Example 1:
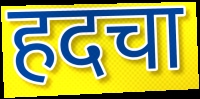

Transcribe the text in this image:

हदचा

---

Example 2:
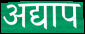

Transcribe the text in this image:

अद्याप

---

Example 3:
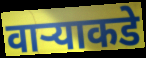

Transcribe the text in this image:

वाऱ्याकडे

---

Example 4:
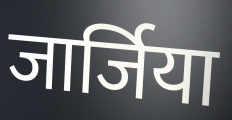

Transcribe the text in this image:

जार्जिया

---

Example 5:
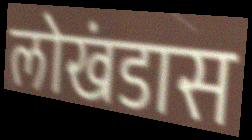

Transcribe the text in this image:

लोखंडास